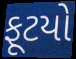
ફૂટયો